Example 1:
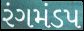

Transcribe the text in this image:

રંગમંડપ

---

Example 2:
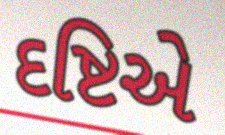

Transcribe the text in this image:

દષ્ટિએ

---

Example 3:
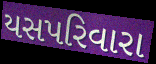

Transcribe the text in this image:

યસપરિવારા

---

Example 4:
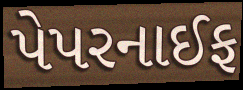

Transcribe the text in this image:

પેપરનાઈફ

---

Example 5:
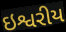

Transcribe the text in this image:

ઇશ્વરીય